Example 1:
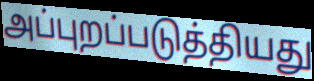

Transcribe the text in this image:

அப்புறப்படுத்தியது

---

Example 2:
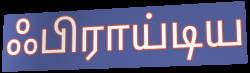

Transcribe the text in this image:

ஃபிராய்டிய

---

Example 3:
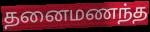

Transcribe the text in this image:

தனைமணந்த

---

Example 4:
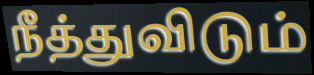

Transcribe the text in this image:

நீத்துவிடும்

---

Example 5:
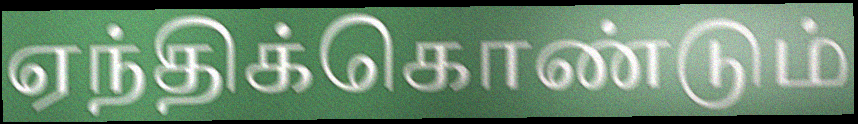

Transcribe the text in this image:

ஏந்திக்கொண்டும்